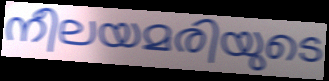
നീലയമരിയുടെ